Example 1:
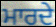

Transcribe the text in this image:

ਮਾਰਦੇ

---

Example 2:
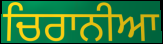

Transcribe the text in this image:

ਚਿਰਾਨੀਆ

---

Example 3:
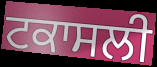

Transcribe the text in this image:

ਟਕਾਸਲੀ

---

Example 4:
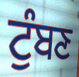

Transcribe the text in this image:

ਟੁੰਬਣ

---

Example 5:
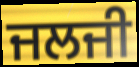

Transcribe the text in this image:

ਜਲਜੀ